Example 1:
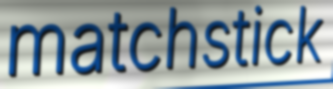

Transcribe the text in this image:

matchstick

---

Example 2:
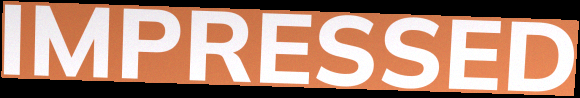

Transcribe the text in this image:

IMPRESSED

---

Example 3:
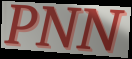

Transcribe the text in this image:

PNN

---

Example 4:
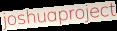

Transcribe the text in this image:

joshuaproject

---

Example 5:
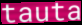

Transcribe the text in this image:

tauta